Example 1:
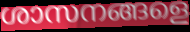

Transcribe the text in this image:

ശാസനങ്ങളെ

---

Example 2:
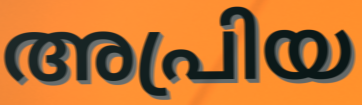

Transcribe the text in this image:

അപ്രിയ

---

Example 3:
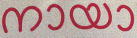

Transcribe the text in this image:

നായാ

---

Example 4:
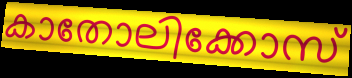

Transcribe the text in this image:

കാതോലിക്കോസ്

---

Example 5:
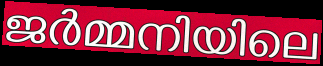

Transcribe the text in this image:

ജർമ്മനിയിലെ